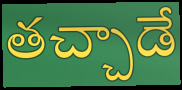
తచ్చాడే